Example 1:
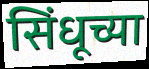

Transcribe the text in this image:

सिंधूच्या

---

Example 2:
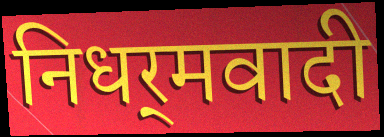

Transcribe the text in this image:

निधर्मवादी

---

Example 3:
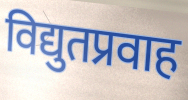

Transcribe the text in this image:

विद्युतप्रवाह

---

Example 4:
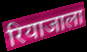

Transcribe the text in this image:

रियाजाला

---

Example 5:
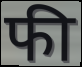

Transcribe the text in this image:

फी